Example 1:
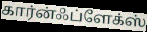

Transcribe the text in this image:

கார்ன்ஃப்ளேக்ஸ்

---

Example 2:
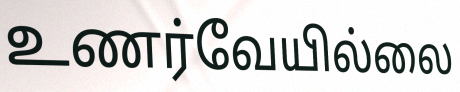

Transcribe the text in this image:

உணர்வேயில்லை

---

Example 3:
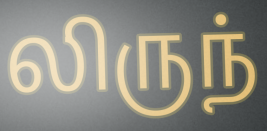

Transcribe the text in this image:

லிருந்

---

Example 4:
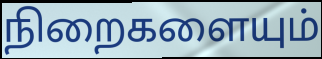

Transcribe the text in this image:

நிறைகளையும்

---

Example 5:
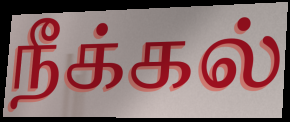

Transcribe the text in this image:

நீக்கல்